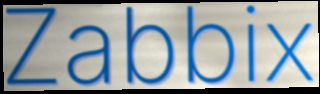
Zabbix